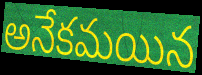
అనేకమయిన